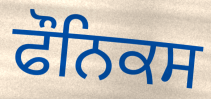
ਫੌਨਿਕਸ